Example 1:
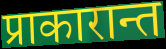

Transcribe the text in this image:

प्राकारान्त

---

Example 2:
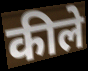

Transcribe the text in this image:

कीले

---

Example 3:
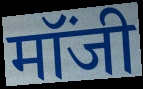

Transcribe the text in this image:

मॉंजी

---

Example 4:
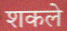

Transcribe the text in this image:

शकले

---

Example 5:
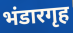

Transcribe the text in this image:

भंडारगृह